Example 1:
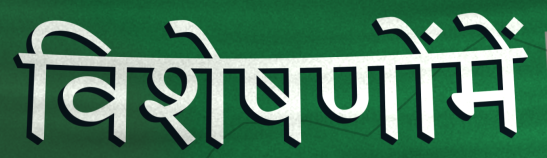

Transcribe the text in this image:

विशेषणोंमें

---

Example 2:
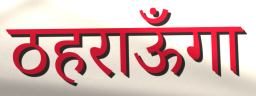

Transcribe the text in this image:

ठहराऊँगा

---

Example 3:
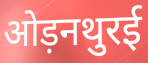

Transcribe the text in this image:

ओड़नथुरई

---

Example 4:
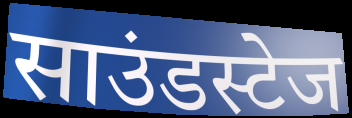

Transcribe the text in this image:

साउंडस्टेज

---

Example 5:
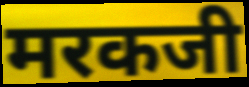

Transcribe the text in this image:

मरकजी